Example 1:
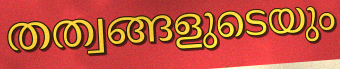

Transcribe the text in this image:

തത്വങ്ങളുടെയും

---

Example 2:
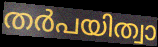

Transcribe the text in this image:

തർപയിത്വാ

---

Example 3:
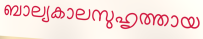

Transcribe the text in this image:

ബാല്യകാലസുഹൃത്തായ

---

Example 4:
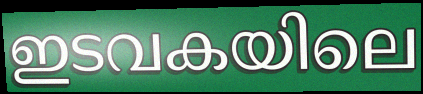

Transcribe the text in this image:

ഇടവകയിലെ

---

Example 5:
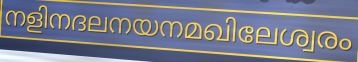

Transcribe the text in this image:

നളിനദലനയനമഖിലേശ്വരം